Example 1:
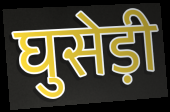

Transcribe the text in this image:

घुसेड़ी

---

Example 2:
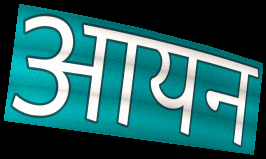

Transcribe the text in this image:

आयन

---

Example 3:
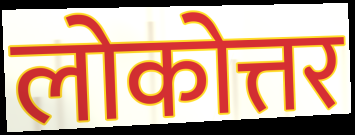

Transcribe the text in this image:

लोकोत्तर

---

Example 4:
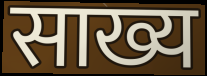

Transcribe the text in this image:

साख्य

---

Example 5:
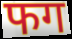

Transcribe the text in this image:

फग